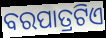
ବରପାତ୍ରଟିଏ